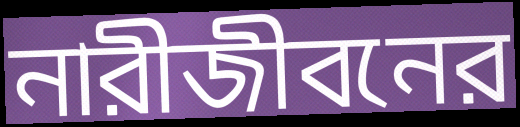
নারীজীবনের